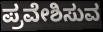
ಪ್ರವೇಶಿಸುವ